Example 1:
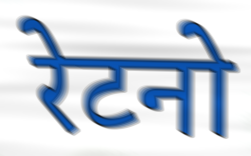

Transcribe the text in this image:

रेटनो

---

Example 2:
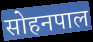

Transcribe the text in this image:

सोहनपाल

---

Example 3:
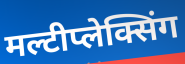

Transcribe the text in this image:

मल्टीप्लेक्सिंग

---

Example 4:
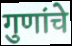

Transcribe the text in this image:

गुणांचे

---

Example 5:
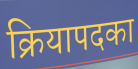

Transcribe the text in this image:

क्रियापदका